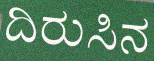
ದಿರುಸಿನ